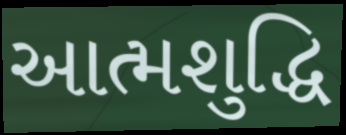
આત્મશુદ્ધિ